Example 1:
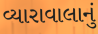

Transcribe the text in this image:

વ્યારાવાલાનું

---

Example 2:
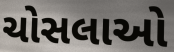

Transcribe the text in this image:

ચોસલાઓ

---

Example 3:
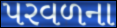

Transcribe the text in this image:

પરવળના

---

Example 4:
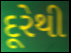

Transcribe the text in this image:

દૂરેથી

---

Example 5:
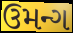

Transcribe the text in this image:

ઉમન્ગ